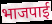
भाजपाई